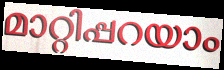
മാറ്റിപ്പറയാം